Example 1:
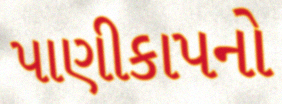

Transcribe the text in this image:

પાણીકાપનો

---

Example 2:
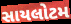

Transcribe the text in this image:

સાયલોટમ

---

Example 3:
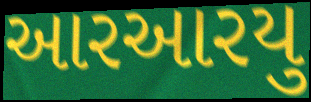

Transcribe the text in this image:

આરઆરયુ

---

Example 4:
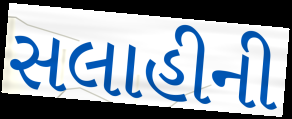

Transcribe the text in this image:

સલાહીની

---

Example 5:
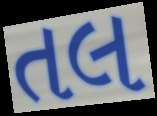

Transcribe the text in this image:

તલ